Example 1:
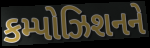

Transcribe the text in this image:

કમ્પોઝિશનને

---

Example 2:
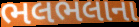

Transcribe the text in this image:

ભલભલાના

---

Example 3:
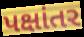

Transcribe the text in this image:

પક્ષાંતર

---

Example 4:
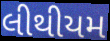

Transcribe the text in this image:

લીથીયમ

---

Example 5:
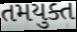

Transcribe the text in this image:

તમયુક્ત